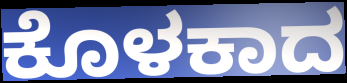
ಕೊಳಕಾದ